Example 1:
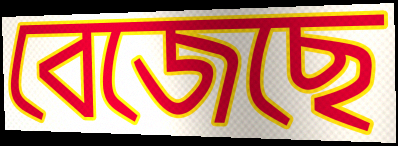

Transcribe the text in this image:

বেজেছে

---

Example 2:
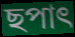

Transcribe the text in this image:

ছপাৎ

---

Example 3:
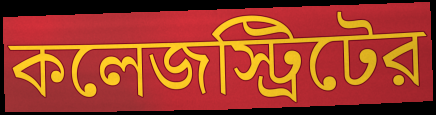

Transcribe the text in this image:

কলেজস্ট্রিটের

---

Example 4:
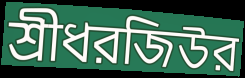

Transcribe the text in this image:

শ্রীধরজিউর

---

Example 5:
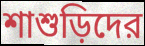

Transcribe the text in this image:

শাশুড়িদের